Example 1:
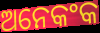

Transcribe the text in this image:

ଅନେକଂକ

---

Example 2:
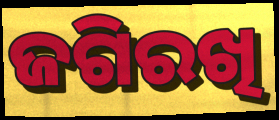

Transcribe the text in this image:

ଜଗିରଖି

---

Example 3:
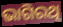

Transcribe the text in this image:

ଭାଗିରଥି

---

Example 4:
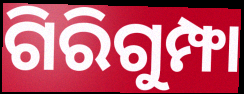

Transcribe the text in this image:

ଗିରିଗୁମ୍ଫା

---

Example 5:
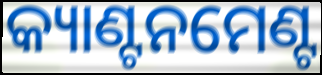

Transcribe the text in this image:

କ୍ୟାଣ୍ଟନମେଣ୍ଟ